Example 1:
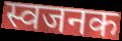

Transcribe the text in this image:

स्वजनक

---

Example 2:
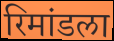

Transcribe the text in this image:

रिमांडला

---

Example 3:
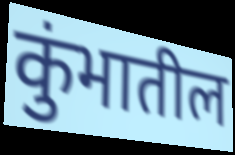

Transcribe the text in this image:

कुंभातील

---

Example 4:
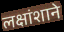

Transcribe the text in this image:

लक्षांशाने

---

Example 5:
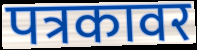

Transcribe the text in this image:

पत्रकावर